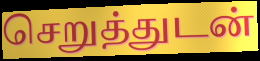
செறுத்துடன்